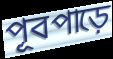
পূবপাড়ে